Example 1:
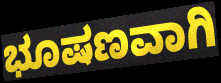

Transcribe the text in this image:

ಭೂಷಣವಾಗಿ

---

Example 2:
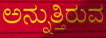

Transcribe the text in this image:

ಅನ್ನುತ್ತಿರುವ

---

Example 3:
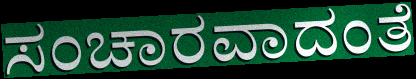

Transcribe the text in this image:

ಸಂಚಾರವಾದಂತೆ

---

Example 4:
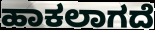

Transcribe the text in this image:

ಹಾಕಲಾಗದೆ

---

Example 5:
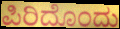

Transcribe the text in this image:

ಪಿರಿದೊಂದು